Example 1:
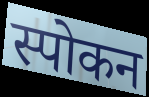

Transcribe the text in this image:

स्पोकन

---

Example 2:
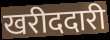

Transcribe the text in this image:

खरीददारी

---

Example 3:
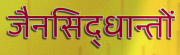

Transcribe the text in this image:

जैनसिद्धान्तों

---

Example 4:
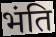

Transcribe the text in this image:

भंति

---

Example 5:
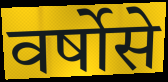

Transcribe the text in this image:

वर्षोसे